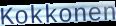
Kokkonen